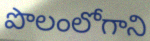
పొలంలోగాని